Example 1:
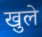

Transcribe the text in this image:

खुले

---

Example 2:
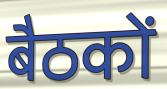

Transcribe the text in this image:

बैठकों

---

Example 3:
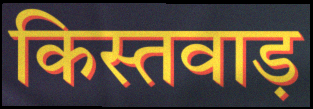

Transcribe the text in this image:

किस्तवाड़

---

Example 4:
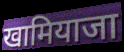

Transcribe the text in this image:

खामियाजा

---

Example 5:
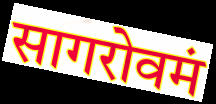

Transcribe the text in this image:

सागरोवमं